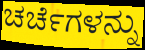
ಚರ್ಚೆಗಳನ್ನು